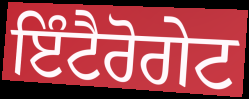
ਇੰਟੈਰੋਗੇਟ